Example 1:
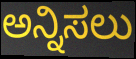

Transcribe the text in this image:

ಅನ್ನಿಸಲು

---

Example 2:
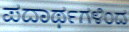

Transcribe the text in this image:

ಪದಾರ್ಥಗಳಿಂದ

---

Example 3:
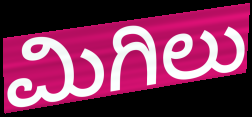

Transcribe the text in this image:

ಮಿಗಿಲು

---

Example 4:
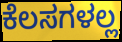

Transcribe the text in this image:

ಕೆಲಸಗಳಲ್ಲ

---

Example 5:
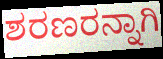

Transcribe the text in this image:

ಶರಣರನ್ನಾಗಿ